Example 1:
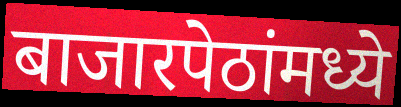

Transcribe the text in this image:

बाजारपेठांमध्ये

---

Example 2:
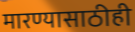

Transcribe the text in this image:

मारण्यासाठीही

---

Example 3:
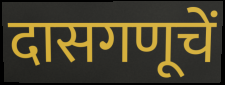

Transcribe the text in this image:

दासगणूचें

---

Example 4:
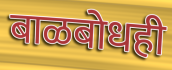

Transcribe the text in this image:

बाळबोधही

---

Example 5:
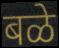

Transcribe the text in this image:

बळे